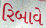
રિબાવે